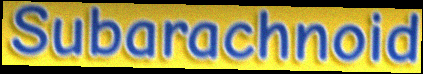
Subarachnoid